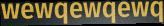
wewqewqewq